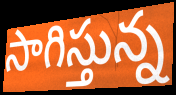
సాగిస్తున్న